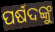
ପର୍ଷଦଙ୍କୁ